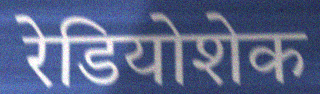
रेडियोशेक